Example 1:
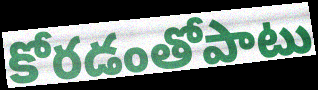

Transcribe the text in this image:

కోరడంతోపాటు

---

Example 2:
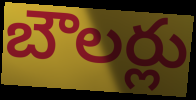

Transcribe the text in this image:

బౌలర్లు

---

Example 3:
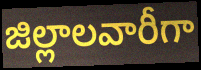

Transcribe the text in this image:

జిల్లాలవారీగా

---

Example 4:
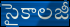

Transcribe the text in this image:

సైకాలజీ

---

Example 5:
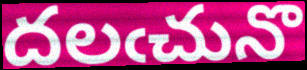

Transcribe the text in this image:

దలఁచునొ